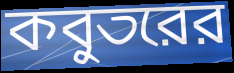
কবুতরের